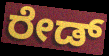
ರೇಡ್